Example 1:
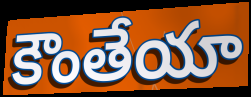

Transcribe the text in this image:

కౌంతేయా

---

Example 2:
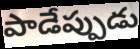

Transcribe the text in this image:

పాడేప్పుడు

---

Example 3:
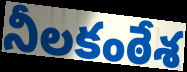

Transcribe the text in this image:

నీలకంఠేశ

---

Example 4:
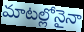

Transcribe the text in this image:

మాటల్లోనైనా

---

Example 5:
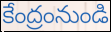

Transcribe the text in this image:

కేంద్రంనుండి